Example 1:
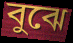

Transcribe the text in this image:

বুঝে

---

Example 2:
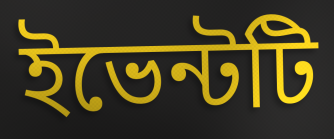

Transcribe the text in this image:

ইভেন্টটি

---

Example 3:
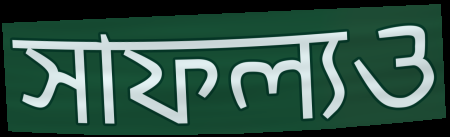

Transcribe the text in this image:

সাফল্যও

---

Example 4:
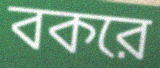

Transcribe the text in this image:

বকরে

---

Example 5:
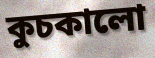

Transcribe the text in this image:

কুচকালো